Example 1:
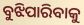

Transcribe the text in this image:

ବୁଝିପାରିବାକୁ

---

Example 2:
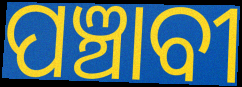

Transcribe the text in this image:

ପଞ୍ଚାବୀ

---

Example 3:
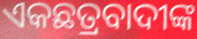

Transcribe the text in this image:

ଏକଛତ୍ରବାଦୀଙ୍କ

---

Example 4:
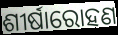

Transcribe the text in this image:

ଶୀର୍ଷାରୋହଣ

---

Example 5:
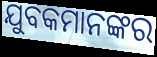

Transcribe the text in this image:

ଯୁବକମାନଙ୍କର